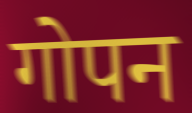
गोपन